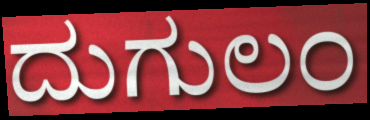
ದುಗುಲಂ